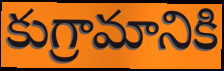
కుగ్రామానికి